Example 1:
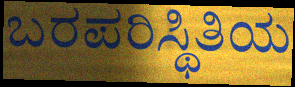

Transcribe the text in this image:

ಬರಪರಿಸ್ಥಿತಿಯ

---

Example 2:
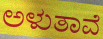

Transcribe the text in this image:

ಅಳುತಾವೆ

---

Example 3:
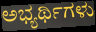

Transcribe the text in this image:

ಅಭ್ಯರ್ಥಿಗಳು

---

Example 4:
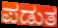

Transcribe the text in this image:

ಪಡುತ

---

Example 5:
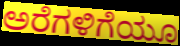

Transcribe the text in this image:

ಅರೆಗಳಿಗೆಯೂ